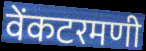
वेंकटरमणी